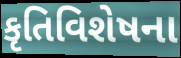
કૃતિવિશેષના